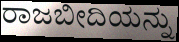
ರಾಜಬೀದಿಯನ್ನು